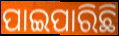
ପାଇପାରିଛି